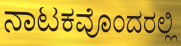
ನಾಟಕವೊಂದರಲ್ಲಿ